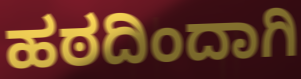
ಹಠದಿಂದಾಗಿ